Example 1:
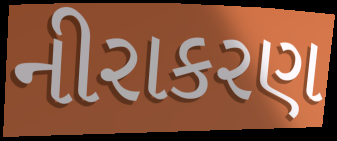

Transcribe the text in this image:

નીરાકરણ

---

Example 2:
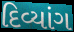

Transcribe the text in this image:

દિવ્યાંગ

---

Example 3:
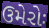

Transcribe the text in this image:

ઉમેરોઃ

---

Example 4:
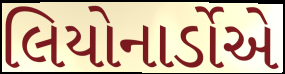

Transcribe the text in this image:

લિયોનાર્ડોએ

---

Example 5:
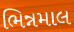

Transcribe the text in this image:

ભિન્નમાલ